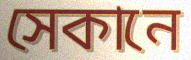
সেকানে